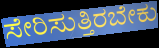
ಸೇರಿಸುತ್ತಿರಬೇಕು